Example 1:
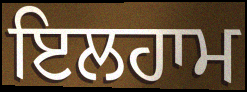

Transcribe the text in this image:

ਇਲਹਾਮ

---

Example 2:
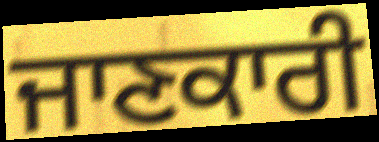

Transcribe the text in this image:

ਜਾਣਕਾਰੀ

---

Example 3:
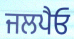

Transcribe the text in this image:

ਜਲਪੈਓ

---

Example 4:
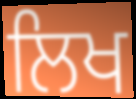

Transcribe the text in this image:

ਲਿਖ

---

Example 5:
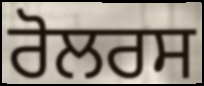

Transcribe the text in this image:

ਰੋਲਰਸ